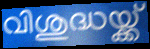
വിശുദ്ധയ്ക്ക്